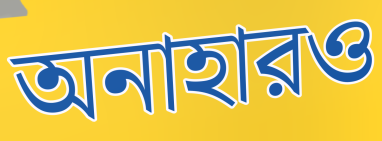
অনাহারও